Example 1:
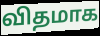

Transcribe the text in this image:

விதமாக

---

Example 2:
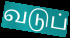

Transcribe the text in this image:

வடுப்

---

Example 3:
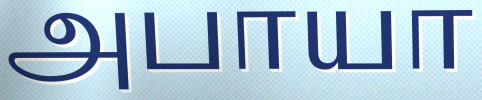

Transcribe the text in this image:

அபாயா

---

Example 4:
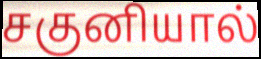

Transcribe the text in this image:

சகுனியால்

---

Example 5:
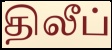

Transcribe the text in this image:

திலீப்